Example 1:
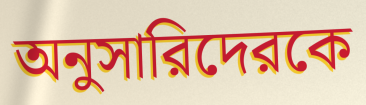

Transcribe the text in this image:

অনুসারিদেরকে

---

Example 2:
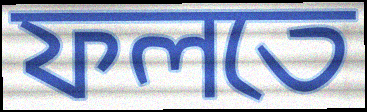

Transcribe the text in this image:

ফলতে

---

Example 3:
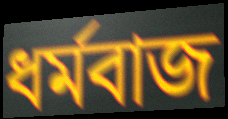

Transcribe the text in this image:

ধর্মবাজ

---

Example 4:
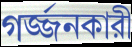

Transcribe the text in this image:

গর্জ্জনকারী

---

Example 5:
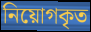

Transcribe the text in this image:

নিয়োগকৃত